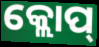
କ୍ଲୋପ୍